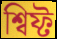
শ্বিফ্ট